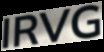
IRVG